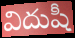
విదుషీ